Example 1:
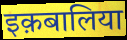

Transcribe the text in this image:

इक़बालिया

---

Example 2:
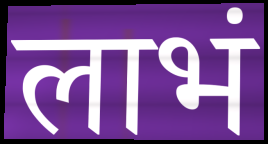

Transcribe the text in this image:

लाभं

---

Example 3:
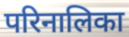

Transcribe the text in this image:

परिनालिका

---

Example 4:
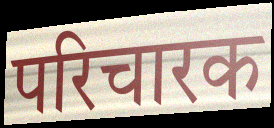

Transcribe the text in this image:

परिचारक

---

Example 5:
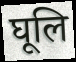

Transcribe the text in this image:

घूलि